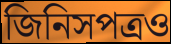
জিনিসপত্রও